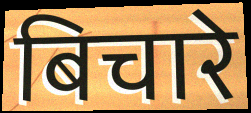
बिचारे